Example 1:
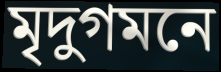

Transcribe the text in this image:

মৃদুগমনে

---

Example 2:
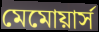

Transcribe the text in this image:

মেমোয়ার্স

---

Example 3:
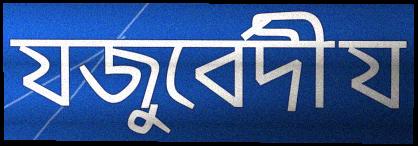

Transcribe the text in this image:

যজুর্বেদীয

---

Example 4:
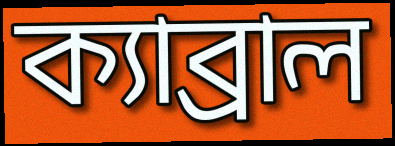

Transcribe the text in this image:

ক্যাব্রাল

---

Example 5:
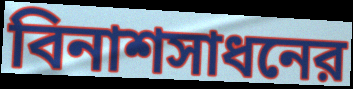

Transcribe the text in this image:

বিনাশসাধনের